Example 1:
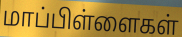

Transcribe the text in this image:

மாப்பிள்ளைகள்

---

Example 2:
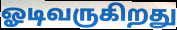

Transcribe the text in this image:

ஓடிவருகிறது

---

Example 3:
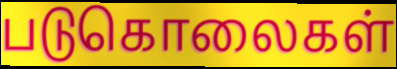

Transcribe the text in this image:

படுகொலைகள்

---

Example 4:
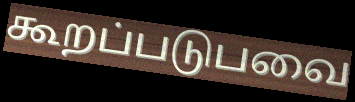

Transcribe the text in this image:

கூறப்படுபவை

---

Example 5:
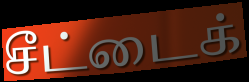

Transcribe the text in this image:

சீட்டைக்